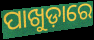
ପାଖୁଡ଼ାରେ